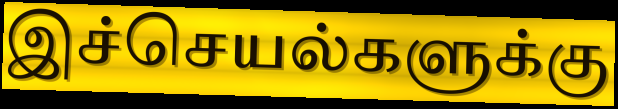
இச்செயல்களுக்கு